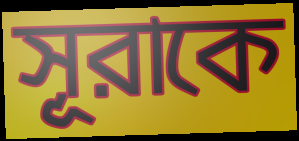
সূরাকে